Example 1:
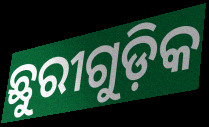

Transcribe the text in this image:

ଛୁରୀଗୁଡ଼ିକ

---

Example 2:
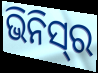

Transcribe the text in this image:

ଭିନିସ୍‌ର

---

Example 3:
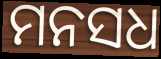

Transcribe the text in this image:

ମନସଧ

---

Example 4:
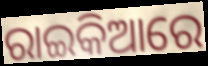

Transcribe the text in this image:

ରାଇକିଆରେ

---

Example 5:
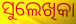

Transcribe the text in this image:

ସୁଲେଖିକା